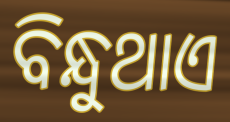
ବିନ୍ଧୁଥାଏ